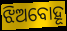
ଝିଅବୋହୂ